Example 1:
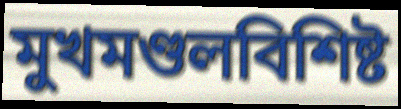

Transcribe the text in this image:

মুখমণ্ডলবিশিষ্ট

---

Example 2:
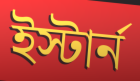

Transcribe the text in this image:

ইস্টার্ন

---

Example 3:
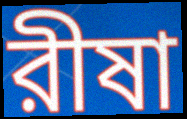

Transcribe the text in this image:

রীষা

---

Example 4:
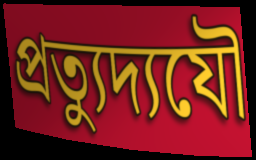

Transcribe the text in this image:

প্রত্যুদ্যযৌ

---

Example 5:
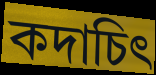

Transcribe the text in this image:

কদাচিৎ